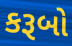
કરૂબો